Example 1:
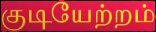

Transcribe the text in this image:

குடியேற்றம்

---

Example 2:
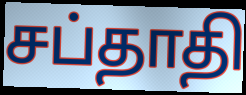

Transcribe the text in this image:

சப்தாதி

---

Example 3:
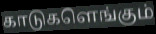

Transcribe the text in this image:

காடுகளெங்கும்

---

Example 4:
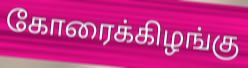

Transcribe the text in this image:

கோரைக்கிழங்கு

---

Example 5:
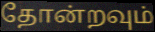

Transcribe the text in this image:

தோன்றவும்